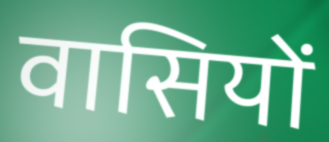
वासियों